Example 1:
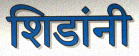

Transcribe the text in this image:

शिडांनी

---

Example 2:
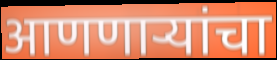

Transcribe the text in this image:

आणणाऱ्यांचा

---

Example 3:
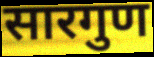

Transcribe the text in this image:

सारगुण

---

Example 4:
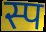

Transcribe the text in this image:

स्प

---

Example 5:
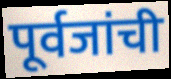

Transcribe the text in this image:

पूर्वजांची